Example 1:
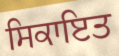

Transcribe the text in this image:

ਸਿਕਾਇਤ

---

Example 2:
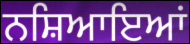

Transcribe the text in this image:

ਨਸ਼ਿਆਇਆਂ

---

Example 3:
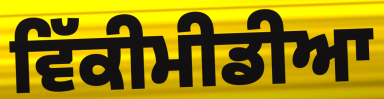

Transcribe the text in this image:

ਵਿੱਕੀਮੀਡੀਆ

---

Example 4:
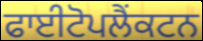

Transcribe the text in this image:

ਫਾਈਟੋਪਲੈਂਕਟਨ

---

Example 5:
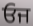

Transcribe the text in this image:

ਓਜ